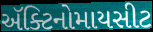
ઍક્ટિનોમાયસીટ